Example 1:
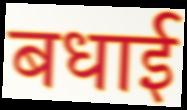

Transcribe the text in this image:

बधाई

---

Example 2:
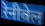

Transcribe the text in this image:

रेनीवेल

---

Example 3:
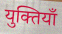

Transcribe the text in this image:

युक्तियाँ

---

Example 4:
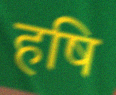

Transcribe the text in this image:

हषि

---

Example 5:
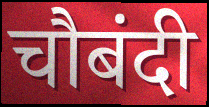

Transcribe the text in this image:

चौबंदी